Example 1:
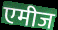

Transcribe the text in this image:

एमीज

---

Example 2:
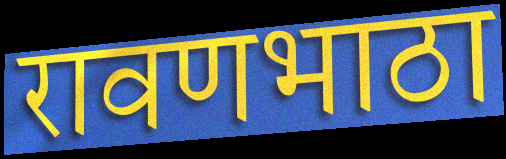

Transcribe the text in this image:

रावणभाठा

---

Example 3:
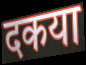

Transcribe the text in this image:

दकया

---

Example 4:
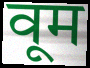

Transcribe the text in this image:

वूम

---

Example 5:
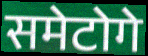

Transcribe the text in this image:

समेटोगे